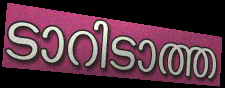
ടാറിടാത്ത